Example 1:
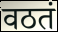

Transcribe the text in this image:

वठतं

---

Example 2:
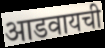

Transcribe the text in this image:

आडवायची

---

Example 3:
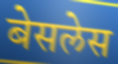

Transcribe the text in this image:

बेसलेस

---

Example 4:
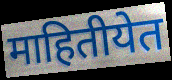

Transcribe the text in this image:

माहितीयेत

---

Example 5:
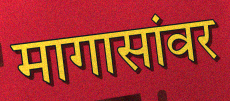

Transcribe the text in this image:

मागासांवर